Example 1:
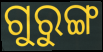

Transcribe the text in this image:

ଗୁରୁଙ୍ଗ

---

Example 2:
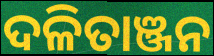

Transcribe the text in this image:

ଦଳିତାଞ୍ଜନ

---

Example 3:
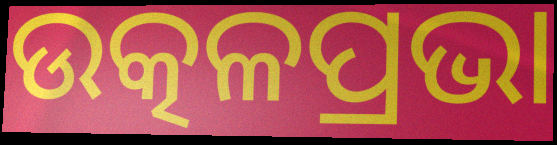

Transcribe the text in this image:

ଉତ୍କଳପ୍ରଭା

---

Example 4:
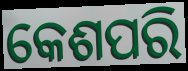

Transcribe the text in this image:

କେଶପରି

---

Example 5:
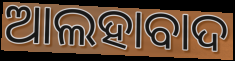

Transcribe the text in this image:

ଆଲହାବାଦ